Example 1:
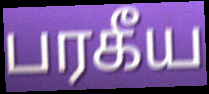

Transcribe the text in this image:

பரகீய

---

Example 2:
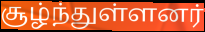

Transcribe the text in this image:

சூழ்ந்துள்ளனர்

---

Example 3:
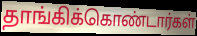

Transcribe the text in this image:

தாங்கிக்கொண்டார்கள்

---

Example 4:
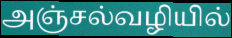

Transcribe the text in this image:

அஞ்சல்வழியில்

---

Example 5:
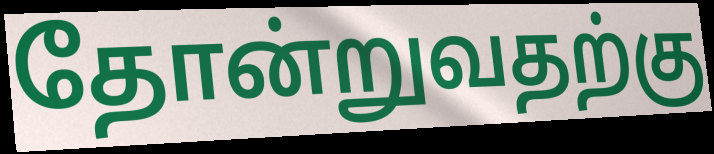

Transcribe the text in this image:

தோன்றுவதற்கு